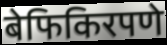
बेफिकिरपणे